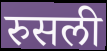
रुसली